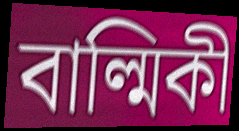
বাল্মিকী